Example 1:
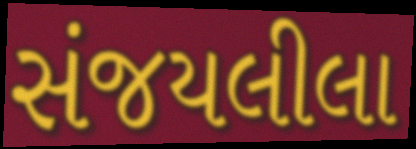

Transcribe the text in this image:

સંજયલીલા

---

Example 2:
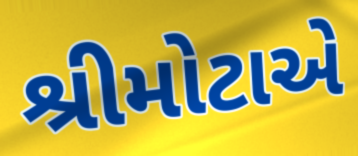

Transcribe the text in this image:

શ્રીમોટાએ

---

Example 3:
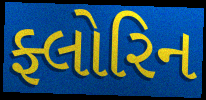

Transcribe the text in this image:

ફ્લોરિન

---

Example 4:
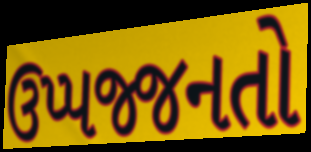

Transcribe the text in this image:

ઉપ્પજ્જનતો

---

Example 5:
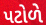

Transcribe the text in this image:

પટોળે